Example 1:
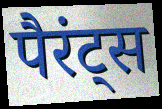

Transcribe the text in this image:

पैरंट्स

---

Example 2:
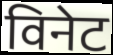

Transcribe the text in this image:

विनेट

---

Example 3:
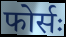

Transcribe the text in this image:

फोर्सः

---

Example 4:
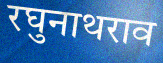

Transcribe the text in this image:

रघुनाथराव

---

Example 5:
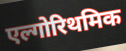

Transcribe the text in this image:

एल्गोरिथमिक